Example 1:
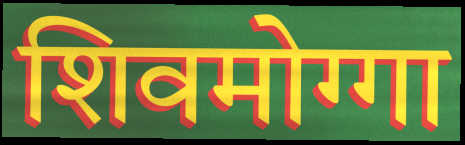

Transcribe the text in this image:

शिवमोग्गा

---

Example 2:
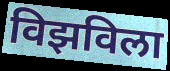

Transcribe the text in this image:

विझविला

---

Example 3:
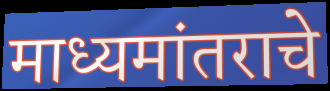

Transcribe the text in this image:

माध्यमांतराचे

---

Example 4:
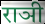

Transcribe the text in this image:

राञी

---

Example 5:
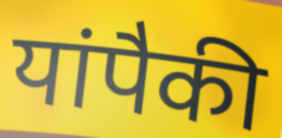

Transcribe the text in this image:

यांपैकी